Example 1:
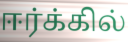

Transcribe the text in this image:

ஈர்க்கில்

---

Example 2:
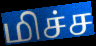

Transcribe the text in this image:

மிச்ச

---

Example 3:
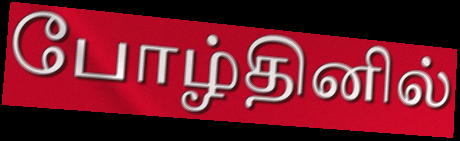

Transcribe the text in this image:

போழ்தினில்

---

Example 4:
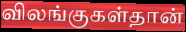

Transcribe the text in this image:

விலங்குகள்தான்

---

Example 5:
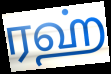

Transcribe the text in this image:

ரஹ்